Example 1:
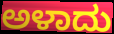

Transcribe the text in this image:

ಅಳಾದು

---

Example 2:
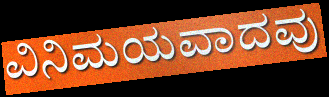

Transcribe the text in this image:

ವಿನಿಮಯವಾದವು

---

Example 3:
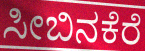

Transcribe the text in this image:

ಸೀಬಿನಕೆರೆ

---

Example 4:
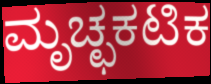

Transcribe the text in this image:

ಮೃಚ್ಛಕಟಿಕ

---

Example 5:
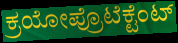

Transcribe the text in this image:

ಕ್ರಯೋಪ್ರೊಟೆಕ್ಟೆಂಟ್